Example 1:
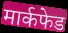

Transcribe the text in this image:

मार्कफेड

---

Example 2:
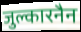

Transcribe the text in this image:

जुल्कारनैन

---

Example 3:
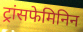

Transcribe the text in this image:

ट्रांसफेमिनिन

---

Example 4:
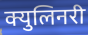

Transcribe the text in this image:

क्युलिनरी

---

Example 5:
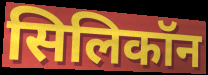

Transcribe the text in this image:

सिलिकॉन